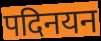
पदिनयन